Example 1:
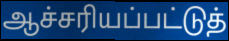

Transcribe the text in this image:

ஆச்சரியப்பட்டுத்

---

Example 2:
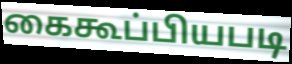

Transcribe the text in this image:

கைகூப்பியபடி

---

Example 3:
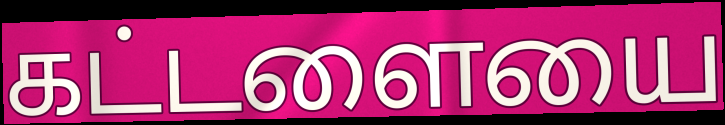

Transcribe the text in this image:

கட்டளையை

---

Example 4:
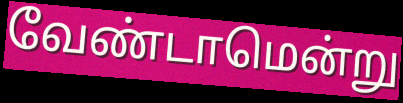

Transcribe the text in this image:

வேண்டாமென்று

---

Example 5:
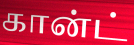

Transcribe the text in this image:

கான்ட்